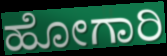
ಹೋಗಾರಿ